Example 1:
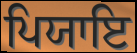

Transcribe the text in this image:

ਪਿਯਾਇ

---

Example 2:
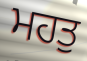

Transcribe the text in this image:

ਮਹਤੁ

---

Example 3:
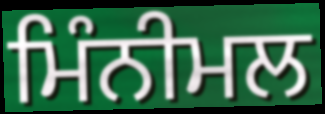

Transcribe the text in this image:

ਮਿੰਨੀਮਲ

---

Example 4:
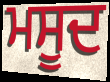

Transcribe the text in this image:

ਮਸੂਦ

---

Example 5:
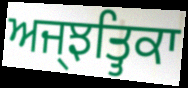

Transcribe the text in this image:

ਅਜ੍ਝਤ੍ਤਿਕਾ